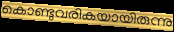
കൊണ്ടുവരികയായിരുന്നു